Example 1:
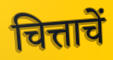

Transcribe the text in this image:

चित्ताचें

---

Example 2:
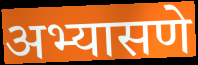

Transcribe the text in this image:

अभ्यासणे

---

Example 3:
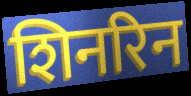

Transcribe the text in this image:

शिनरिन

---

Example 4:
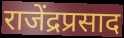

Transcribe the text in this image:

राजेंद्रप्रसाद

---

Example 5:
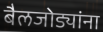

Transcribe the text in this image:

बैलजोड्यांना